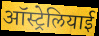
ऑस्ट्रेलियाई